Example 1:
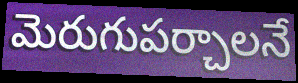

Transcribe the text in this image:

మెరుగుపర్చాలనే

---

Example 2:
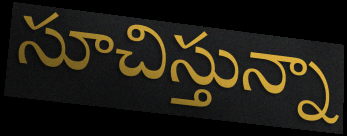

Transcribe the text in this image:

సూచిస్తున్నా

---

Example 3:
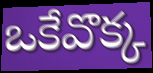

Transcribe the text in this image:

ఒకేవొక్క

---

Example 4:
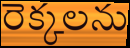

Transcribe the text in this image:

రెక్కలను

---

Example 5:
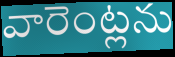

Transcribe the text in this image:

వారెంట్లను